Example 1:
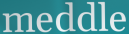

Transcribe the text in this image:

meddle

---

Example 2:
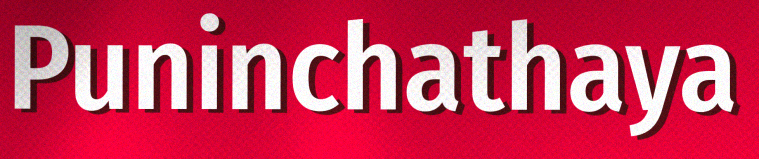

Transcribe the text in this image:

Puninchathaya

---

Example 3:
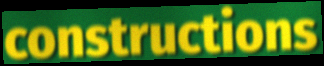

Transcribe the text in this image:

constructions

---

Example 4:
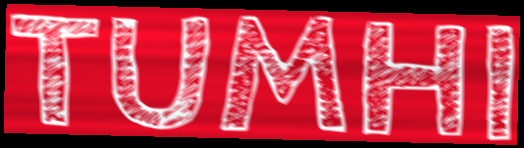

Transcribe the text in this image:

TUMHI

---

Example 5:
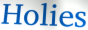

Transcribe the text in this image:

Holies